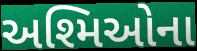
અશ્મિઓના